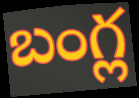
బంగ్ల